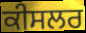
ਕੀਸਲਰ